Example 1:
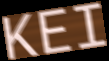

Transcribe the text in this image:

KEI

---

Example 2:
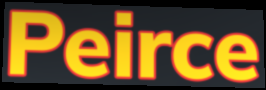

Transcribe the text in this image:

Peirce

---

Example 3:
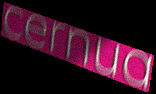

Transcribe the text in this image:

cernua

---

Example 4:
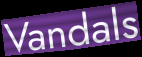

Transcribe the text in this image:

Vandals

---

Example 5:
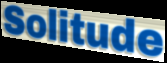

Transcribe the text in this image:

Solitude